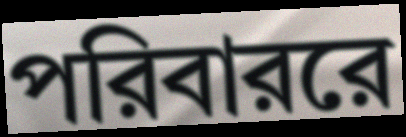
পরিবাররে